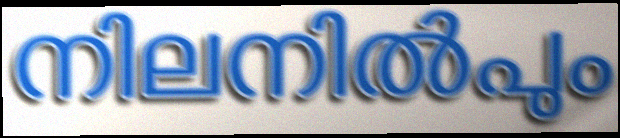
നിലനിൽപും